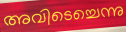
അവിടെച്ചെന്നു